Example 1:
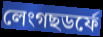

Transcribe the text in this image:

লেংগছডৰ্ফে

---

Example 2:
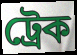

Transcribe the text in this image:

ট্ৰেক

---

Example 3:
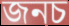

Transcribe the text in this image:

জনচ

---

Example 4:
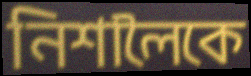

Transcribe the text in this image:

নিশালৈকে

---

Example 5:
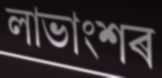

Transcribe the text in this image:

লাভাংশৰ